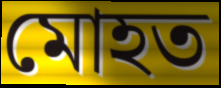
মোহত